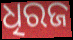
ଧିରଜ